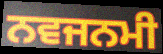
ਨਵਜਨਮੀ